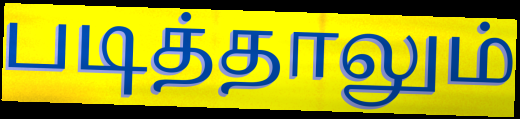
படித்தாலும்